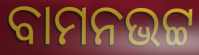
ବାମନଭଟ୍ଟ